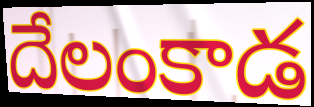
దేలంకాడ